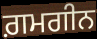
ਗ਼ਮਗੀਨ